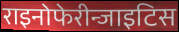
राइनोफेरीन्जाइटिस